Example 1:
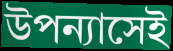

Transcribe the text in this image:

উপন্যাসেই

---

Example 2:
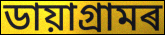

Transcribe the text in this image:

ডায়াগ্ৰামৰ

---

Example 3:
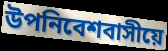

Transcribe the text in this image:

উপনিবেশবাসীয়ে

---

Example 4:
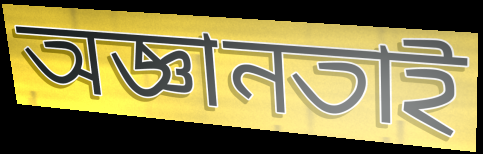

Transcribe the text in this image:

অজ্ঞানতাই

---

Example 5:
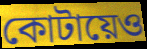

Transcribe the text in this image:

কোটায়েও